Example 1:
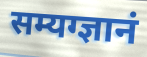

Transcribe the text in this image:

सम्यग्ज्ञानं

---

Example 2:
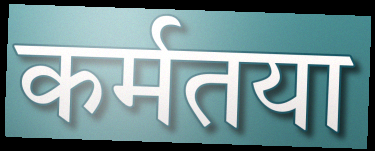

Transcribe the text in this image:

कर्मतया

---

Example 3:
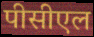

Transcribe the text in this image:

पीसीएल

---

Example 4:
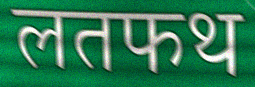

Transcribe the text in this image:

लतफथ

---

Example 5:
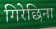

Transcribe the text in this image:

गिरेछिना